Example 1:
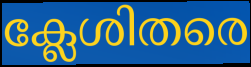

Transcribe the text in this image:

ക്ലേശിതരെ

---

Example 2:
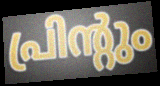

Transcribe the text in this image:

പ്രിന്റും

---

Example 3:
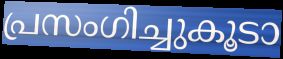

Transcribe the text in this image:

പ്രസംഗിച്ചുകൂടാ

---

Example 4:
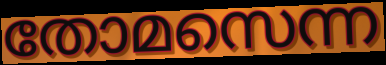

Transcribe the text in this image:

തോമസെന്ന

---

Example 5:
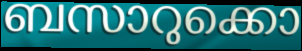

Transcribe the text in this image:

ബസാറുക്കൊ